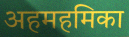
अहमहमिका